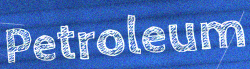
Petroleum